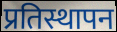
प्रतिस्थापन